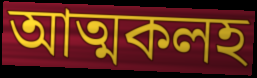
আত্মকলহ